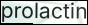
prolactin